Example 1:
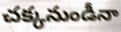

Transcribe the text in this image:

చక్కనుండీనా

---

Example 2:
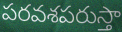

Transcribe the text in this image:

పరవశపరుస్తా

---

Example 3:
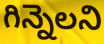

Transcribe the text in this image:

గిన్నెలని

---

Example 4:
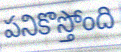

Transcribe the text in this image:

పనికొస్తోంది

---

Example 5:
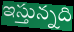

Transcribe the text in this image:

ఇస్తున్నది